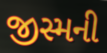
જીસ્મની